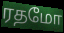
ரதமோ